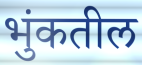
भुंकतील